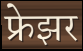
फ्रेझर